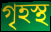
গৃহস্থ